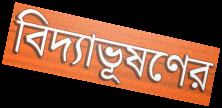
বিদ্যাভূষণের